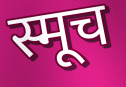
स्मूच